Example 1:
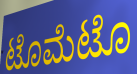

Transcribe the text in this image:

ಟೊಮೆಟೊ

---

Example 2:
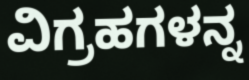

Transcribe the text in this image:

ವಿಗ್ರಹಗಳನ್ನ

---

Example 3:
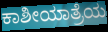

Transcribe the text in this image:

ಕಾಶೀಯಾತ್ರೆಯ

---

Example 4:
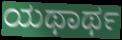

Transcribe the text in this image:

ಯಥಾರ್ಥ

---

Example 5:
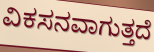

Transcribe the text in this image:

ವಿಕಸನವಾಗುತ್ತದೆ